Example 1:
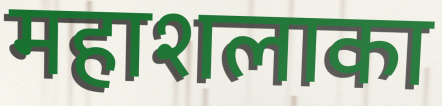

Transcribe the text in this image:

महाशलाका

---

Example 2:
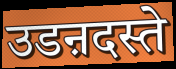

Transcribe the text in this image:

उडऩदस्ते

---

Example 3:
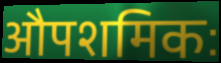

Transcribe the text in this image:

औपशमिकः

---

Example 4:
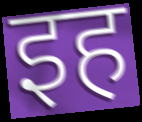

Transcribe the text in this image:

इह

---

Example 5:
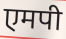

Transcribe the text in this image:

एमपी